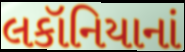
લકૉનિયાનાં